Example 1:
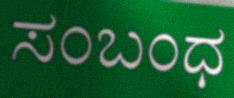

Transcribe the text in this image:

ಸಂಬಂಧ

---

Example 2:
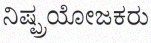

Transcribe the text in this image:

ನಿಷ್ಪ್ರಯೋಜಕರು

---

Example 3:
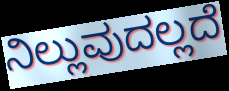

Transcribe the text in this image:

ನಿಲ್ಲುವುದಲ್ಲದೆ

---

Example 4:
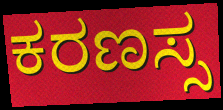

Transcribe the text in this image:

ಕರಣಸ್ಸ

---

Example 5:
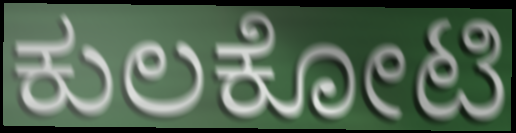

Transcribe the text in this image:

ಕುಲಕೋಟಿ